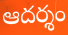
ఆదర్శం